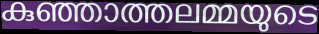
കുഞ്ഞാത്തലമ്മയുടെ